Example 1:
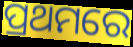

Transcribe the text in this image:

ପ୍ରଥମରେ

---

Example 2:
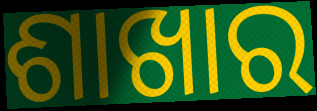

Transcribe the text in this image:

ଶାଖାର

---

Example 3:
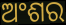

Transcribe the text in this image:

ଅଂଶର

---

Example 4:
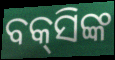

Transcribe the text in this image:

ବକ୍‌ସିଙ୍କ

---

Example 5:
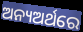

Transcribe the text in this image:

ଅନ୍ୟଅର୍ଥରେ